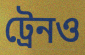
ট্রেনও